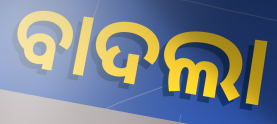
ବାଦଲା